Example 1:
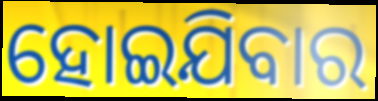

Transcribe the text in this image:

ହୋଇଯିବାର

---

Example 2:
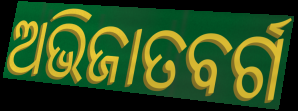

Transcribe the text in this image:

ଅଭିଜାତବର୍ଗ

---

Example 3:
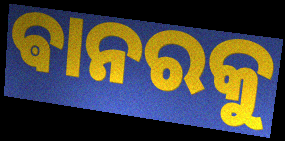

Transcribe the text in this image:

ଵାନରକୁ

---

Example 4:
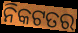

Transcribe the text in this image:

ନିକଟତର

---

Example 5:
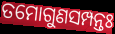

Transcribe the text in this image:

ତମୋଗୁଣସମ୍ପନ୍ତଃ